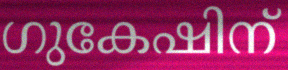
ഗുകേഷിന്